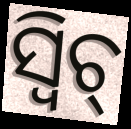
ସ୍ଵିଚ୍